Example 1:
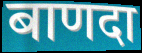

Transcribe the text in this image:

बाणदा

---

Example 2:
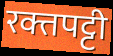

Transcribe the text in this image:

रक्तपट्टी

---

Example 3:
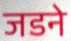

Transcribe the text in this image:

जडने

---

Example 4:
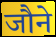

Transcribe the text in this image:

जौने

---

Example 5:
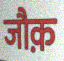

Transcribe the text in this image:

जौक़